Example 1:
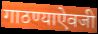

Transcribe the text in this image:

गाठण्याऐवजी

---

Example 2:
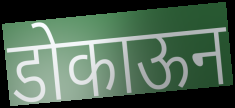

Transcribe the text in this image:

डोकाऊन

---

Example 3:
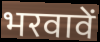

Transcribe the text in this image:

भरवावें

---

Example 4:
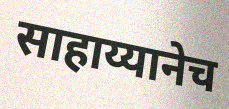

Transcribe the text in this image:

साहाय्यानेच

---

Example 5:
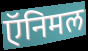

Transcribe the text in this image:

ऍनिमल